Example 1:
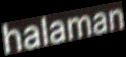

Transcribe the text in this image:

halaman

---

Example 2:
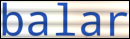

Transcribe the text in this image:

balar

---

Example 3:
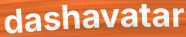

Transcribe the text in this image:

dashavatar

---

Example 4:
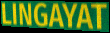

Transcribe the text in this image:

LINGAYAT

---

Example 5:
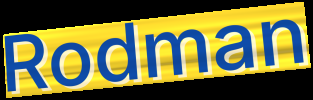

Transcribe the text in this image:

Rodman